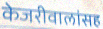
केजरीवालांसह